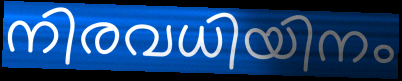
നിരവധിയിനം